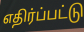
எதிர்ப்பட்டு